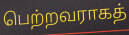
பெற்றவராகத்